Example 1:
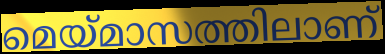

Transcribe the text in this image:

മെയ്മാസത്തിലാണ്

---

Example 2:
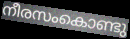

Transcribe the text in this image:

നീരസംകൊണ്ടു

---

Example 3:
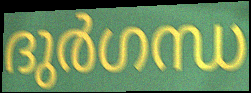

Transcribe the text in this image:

ദുർഗന്ധ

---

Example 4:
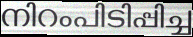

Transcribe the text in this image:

നിറംപിടിപ്പിച്ച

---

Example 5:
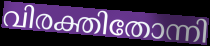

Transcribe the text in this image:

വിരക്തിതോന്നി